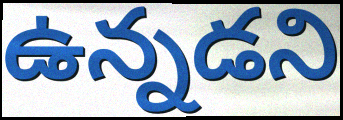
ఉన్నడని